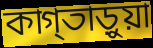
কাগ্‌তাড়ুয়া